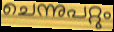
ചെന്നുപറ്റും